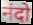
नंदो